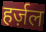
हर्ज़ल